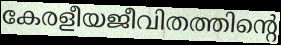
കേരളീയജീവിതത്തിന്റെ